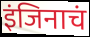
इंजिनाचं